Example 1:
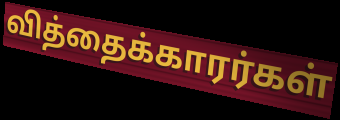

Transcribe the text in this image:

வித்தைக்காரர்கள்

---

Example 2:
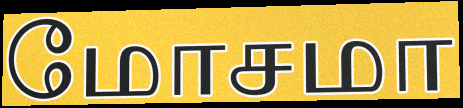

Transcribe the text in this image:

மோசமா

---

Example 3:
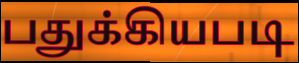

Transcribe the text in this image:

பதுக்கியபடி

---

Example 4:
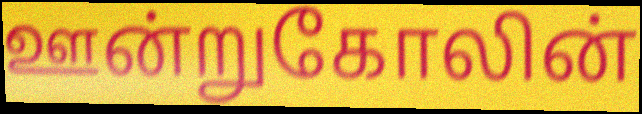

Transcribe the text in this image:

ஊன்றுகோலின்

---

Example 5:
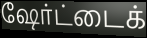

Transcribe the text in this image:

ஷேர்ட்டைக்